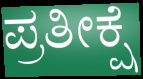
ಪ್ರತೀಕ್ಷೆ